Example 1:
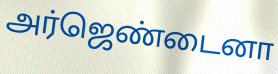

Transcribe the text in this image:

அர்ஜெண்டைனா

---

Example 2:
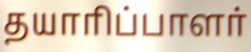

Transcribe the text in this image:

தயாரிப்பாளர்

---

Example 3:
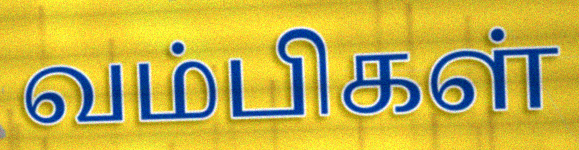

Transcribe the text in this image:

வம்பிகள்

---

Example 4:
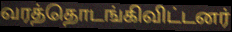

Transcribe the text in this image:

வரத்தொடங்கிவிட்டனர்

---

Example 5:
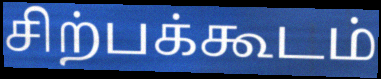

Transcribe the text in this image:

சிற்பக்கூடம்